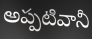
అప్పటివానీ